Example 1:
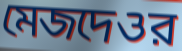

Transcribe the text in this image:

মেজদেওর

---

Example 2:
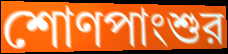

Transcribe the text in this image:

শোণপাংশুর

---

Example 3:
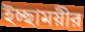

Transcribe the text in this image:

ইচ্ছাময়ীর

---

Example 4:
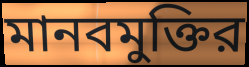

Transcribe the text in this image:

মানবমুক্তির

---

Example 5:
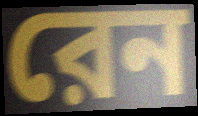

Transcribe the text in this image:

রেন